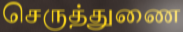
செருத்துணை